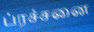
ப்ரச்சனை